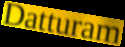
Datturam